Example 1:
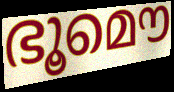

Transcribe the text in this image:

ഭൂമൌ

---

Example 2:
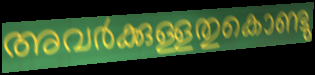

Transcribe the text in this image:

അവർക്കുള്ളതുകൊണ്ടു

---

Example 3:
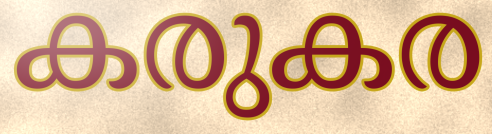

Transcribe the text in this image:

കരുകര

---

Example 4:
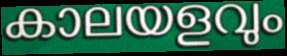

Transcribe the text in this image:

കാലയളവും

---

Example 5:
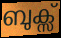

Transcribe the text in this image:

ബുക്സ്